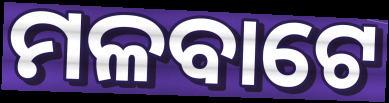
ମଳବାଟେ